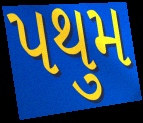
પથુમ